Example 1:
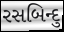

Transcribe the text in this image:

રસબિન્દુ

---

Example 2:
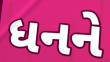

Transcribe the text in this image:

ધનને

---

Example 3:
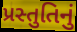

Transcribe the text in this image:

પ્રસ્તુતિનું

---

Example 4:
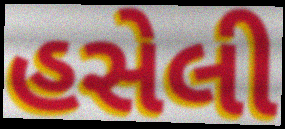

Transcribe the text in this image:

હસેલી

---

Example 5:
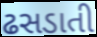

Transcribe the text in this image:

ઢસડાતી